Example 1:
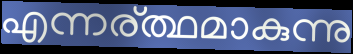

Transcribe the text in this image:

എന്നര്ത്ഥമാകുന്നു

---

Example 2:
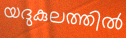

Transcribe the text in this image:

യദുകുലത്തിൽ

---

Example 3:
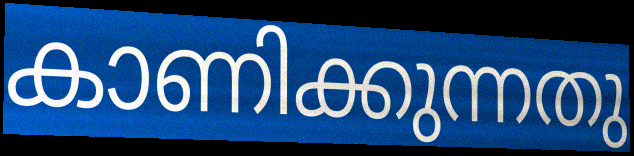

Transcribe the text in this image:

കാണിക്കുന്നതു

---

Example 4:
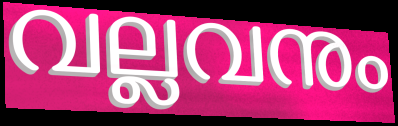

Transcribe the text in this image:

വല്ലവനും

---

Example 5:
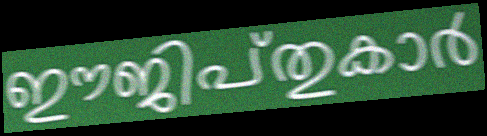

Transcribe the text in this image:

ഈജിപ്‌തുകാർ